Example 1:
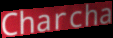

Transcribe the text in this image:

Charcha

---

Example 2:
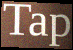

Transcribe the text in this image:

Tap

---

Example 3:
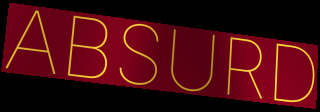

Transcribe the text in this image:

ABSURD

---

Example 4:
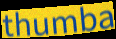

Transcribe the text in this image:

thumba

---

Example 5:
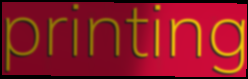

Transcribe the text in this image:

printing